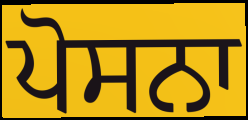
ਪੋਸਨਾ